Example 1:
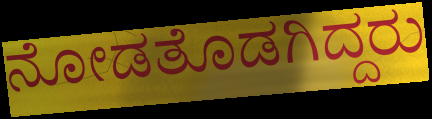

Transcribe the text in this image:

ನೋಡತೊಡಗಿದ್ದರು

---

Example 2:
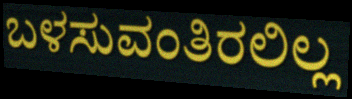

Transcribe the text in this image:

ಬಳಸುವಂತಿರಲಿಲ್ಲ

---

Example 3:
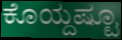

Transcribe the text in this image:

ಕೊಯ್ದಷ್ಟೂ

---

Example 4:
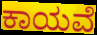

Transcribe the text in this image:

ಕಾಯವೆ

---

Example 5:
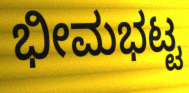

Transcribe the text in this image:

ಭೀಮಭಟ್ಟ